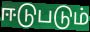
ஈடுபடும்